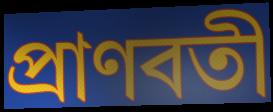
প্রাণবতী